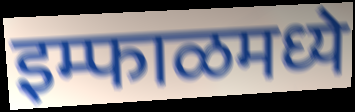
इम्फाळमध्ये